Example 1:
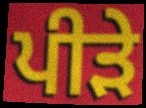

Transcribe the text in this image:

ਪੀੜੇ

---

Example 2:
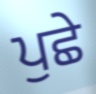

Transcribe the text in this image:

ਪੁਛੇ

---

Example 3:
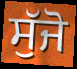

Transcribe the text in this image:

ਸੁੱਜੋ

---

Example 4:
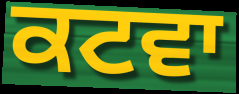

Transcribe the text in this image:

ਕਟਵਾ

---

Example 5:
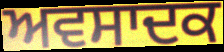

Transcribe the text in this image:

ਅਵਸਾਦਕ